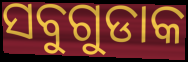
ସବୁଗୁଡାକ